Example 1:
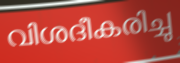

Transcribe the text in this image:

വിശദീകരിച്ചു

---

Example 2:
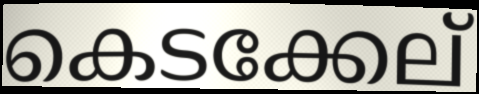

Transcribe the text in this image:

കെടക്കേല്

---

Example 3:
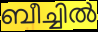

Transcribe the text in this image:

ബീച്ചിൽ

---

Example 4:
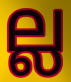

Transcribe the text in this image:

ല്ല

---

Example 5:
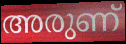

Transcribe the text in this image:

അരുണ്